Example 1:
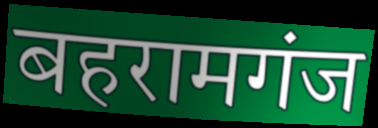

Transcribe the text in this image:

बहरामगंज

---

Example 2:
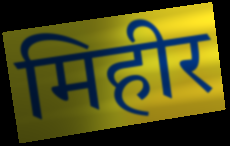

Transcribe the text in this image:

मिहीर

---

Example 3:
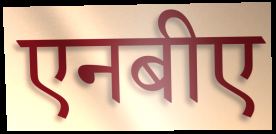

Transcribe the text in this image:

एनबीए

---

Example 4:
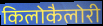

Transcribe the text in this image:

किलोकैलोरी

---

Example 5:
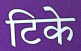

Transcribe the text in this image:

टिके